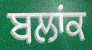
ਬਲਾਂਕ